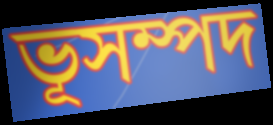
ভূসম্পদ